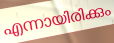
എന്നായിരിക്കും